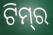
ଟିମ୍‌ର